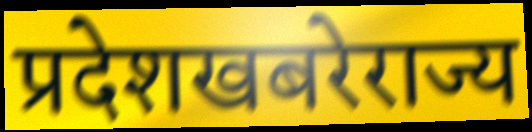
प्रदेशखबरेराज्य